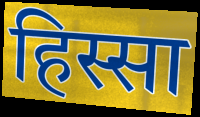
हिस्सा